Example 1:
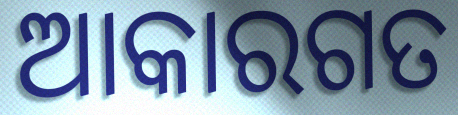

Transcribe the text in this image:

ଆକାରଗତ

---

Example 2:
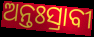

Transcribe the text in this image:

ଅନ୍ତଃସ୍ରାବୀ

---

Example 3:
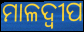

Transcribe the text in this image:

ମାଳଦ୍ବୀପ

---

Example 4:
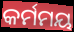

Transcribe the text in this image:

କର୍ମମୟ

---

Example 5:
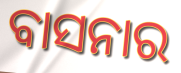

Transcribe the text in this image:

ବାସନାର